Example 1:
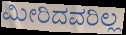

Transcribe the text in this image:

ಮೀರಿದವರಿಲ್ಲ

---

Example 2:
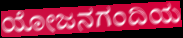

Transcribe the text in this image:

ಯೋಜನಗಂದಿಯ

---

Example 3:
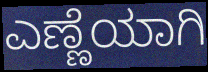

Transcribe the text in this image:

ಎಣ್ಣೆಯಾಗಿ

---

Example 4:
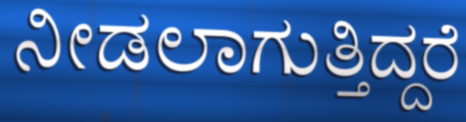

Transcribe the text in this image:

ನೀಡಲಾಗುತ್ತಿದ್ದರೆ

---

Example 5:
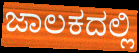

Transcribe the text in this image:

ಜಾಲಕದಲ್ಲಿ